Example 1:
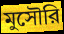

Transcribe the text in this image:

মুসৌরি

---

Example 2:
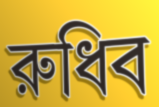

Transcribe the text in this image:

রুধিব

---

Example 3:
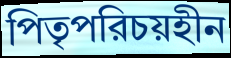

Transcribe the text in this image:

পিতৃপরিচয়হীন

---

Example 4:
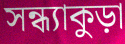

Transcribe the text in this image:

সন্ধ্যাকুড়া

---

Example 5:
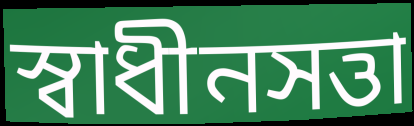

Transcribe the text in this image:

স্বাধীনসত্তা